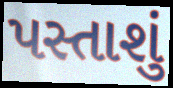
પસ્તાશું